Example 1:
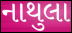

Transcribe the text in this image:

નાથુલા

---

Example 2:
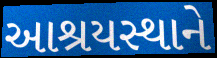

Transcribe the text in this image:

આશ્રયસ્થાને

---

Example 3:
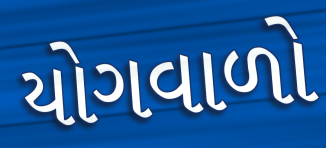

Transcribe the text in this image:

યોગવાળો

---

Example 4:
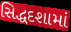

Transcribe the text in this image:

સિદ્ધદશામાં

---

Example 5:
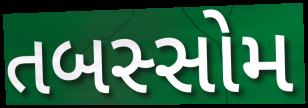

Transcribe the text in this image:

તબસ્સોમ